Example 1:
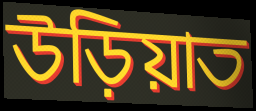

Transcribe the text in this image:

উড়িয়াত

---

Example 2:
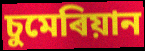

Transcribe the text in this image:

চুমেৰিয়ান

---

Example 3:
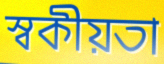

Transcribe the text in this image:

স্বকীয়তা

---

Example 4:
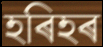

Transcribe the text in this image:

হৰিহৰ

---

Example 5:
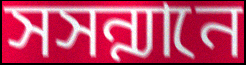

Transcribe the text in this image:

সসন্মানে